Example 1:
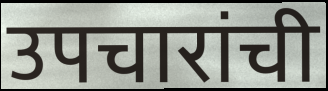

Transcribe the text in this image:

उपचारांची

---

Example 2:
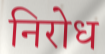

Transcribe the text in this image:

निरोध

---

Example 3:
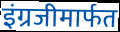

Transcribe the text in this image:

इंग्रजीमार्फत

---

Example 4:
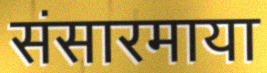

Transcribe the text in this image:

संसारमाया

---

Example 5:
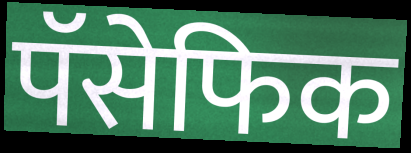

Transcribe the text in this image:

पॅसेफिक